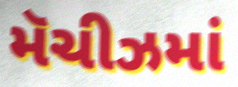
મૅચીઝમાં